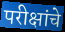
परीक्षांचे